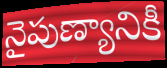
నైపుణ్యానికీ